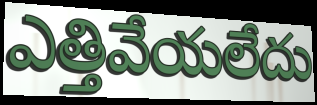
ఎత్తివేయలేదు